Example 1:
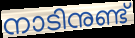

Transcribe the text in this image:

നാടിനുണ്ട്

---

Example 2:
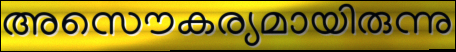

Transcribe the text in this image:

അസൌകര്യമായിരുന്നു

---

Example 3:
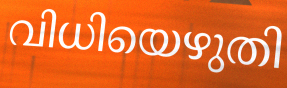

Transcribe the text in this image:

വിധിയെഴുതി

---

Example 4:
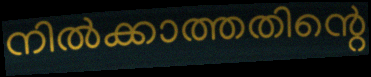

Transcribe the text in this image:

നിൽക്കാത്തതിന്റെ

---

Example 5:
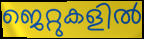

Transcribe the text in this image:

ജെറ്റുകളിൽ